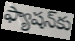
ఫ్యాషన్‌కు